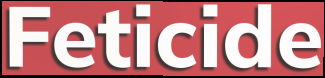
Feticide